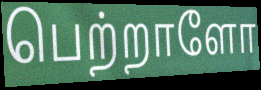
பெற்றாளோ